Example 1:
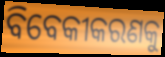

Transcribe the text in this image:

ବିବେକୀକରଣକୁ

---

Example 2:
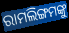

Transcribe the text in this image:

ରାମଲିଙ୍ଗମଙ୍କୁ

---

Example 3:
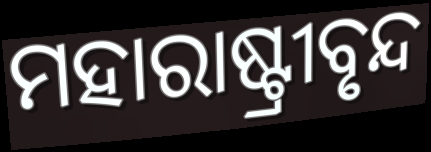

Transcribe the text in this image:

ମହାରାଷ୍ଟ୍ରୀବୃନ୍ଦ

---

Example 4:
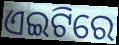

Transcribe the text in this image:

ଏଇଟିରେ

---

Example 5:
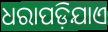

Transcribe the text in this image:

ଧରାପଡ଼ିଯାଏ